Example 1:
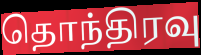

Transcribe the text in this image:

தொந்திரவு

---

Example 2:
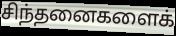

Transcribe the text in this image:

சிந்தனைகளைக்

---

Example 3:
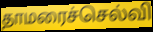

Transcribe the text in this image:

தாமரைச்செல்வி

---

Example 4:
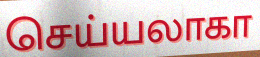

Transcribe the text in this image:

செய்யலாகா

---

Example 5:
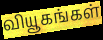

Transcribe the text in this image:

வியூகங்கள்